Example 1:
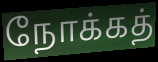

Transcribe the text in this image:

நோக்கத்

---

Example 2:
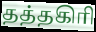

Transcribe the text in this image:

தத்தகிரி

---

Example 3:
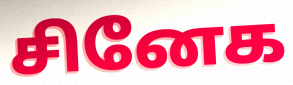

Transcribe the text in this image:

சினேக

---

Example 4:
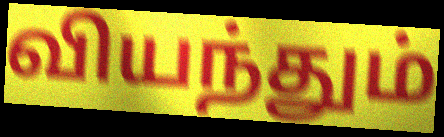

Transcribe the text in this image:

வியந்தும்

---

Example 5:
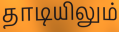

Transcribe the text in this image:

தாடியிலும்